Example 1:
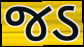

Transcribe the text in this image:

જડ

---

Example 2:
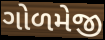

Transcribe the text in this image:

ગોળમેજી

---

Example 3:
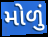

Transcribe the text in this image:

મોળું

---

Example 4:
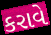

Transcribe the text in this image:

કરાવે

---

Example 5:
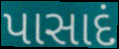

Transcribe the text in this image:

પાસાદં